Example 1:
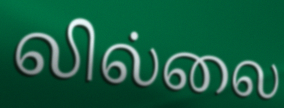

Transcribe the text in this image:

லில்லை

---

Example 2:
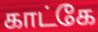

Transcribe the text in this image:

காட்கே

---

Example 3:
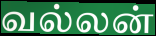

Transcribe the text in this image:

வல்லன்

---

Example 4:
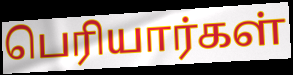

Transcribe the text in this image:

பெரியார்கள்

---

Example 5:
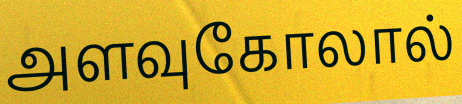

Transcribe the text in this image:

அளவுகோலால்